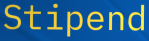
Stipend